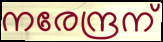
നരേന്ദ്രന്